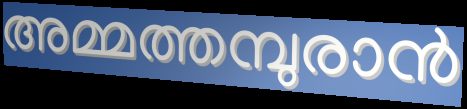
അമ്മത്തമ്പുരാൻ